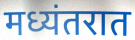
मध्यंतरात